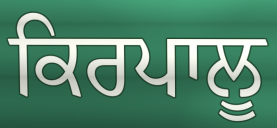
ਕਿਰਪਾਲੂ